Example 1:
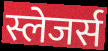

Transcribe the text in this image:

स्लेजर्स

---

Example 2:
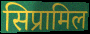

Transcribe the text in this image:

सिप्रामिल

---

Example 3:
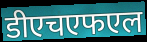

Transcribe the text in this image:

डीएचएफएल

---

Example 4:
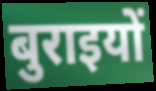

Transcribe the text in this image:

बुराइयों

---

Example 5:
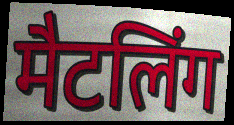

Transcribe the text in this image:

मैटलिंग